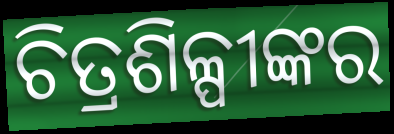
ଚିତ୍ରଶିଳ୍ପୀଙ୍କର